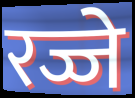
रज्जे